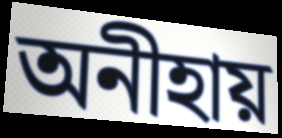
অনীহায়